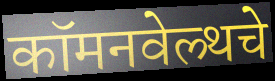
कॉमनवेल्थचे